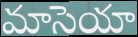
మాసెయా